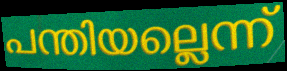
പന്തിയല്ലെന്ന്